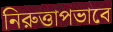
নিরুত্তাপভাবে